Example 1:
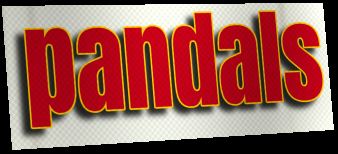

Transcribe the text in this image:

pandals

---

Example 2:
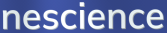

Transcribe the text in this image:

nescience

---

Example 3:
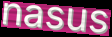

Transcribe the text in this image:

nasus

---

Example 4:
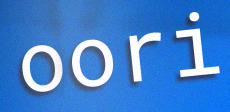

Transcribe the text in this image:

oori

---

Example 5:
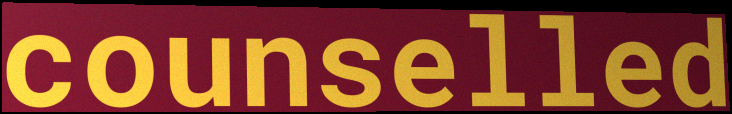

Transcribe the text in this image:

counselled